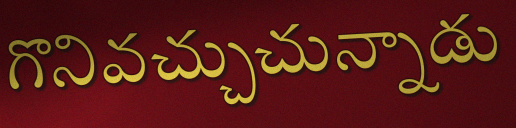
గొనివచ్చుచున్నాడు